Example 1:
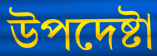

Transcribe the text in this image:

উপদেষ্টা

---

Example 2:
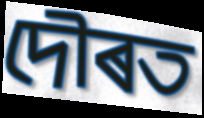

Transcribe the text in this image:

দৌৰত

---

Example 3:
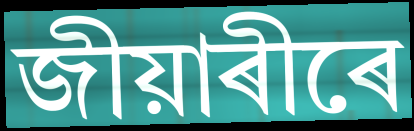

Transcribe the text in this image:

জীয়াৰীৰে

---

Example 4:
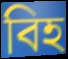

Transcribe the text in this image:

বিহ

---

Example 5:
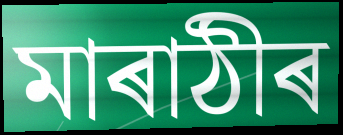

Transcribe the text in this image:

মাৰাঠীৰ